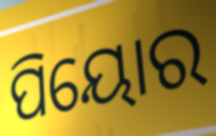
ପିୟୋର